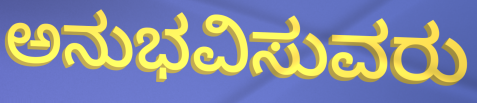
ಅನುಭವಿಸುವರು